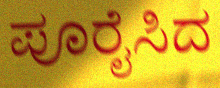
ಪೂರೈಸಿದ